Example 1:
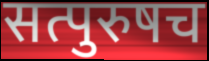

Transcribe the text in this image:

सत्पुरुषच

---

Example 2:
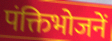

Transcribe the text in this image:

पंक्तिभोजनें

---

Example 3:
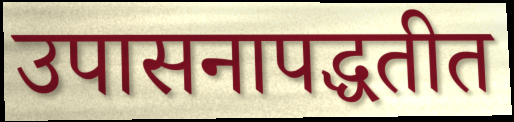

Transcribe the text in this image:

उपासनापद्धतीत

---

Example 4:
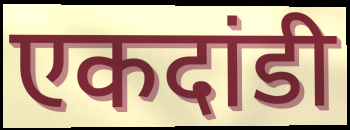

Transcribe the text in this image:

एकदांडी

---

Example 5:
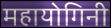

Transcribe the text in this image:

महायोगिनी